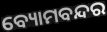
ବ୍ୟୋମବନ୍ଦର